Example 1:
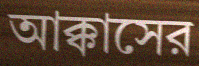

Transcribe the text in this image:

আক্কাসের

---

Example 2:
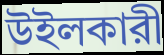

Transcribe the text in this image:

উইলকারী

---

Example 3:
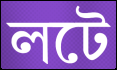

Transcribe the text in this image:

লটে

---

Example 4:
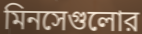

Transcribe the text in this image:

মিনসেগুলোর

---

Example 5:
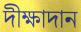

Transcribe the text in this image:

দীক্ষাদান